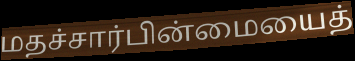
மதச்சார்பின்மையைத்